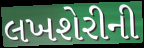
લખશેરીની